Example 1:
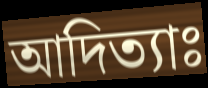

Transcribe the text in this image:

আদিত্যাঃ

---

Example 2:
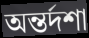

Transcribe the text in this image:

অন্তর্দশা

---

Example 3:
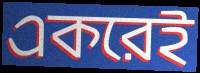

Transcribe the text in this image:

একরেই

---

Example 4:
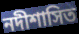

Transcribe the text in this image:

নদীশাসিত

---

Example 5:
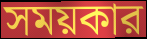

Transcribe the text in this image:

সময়কার